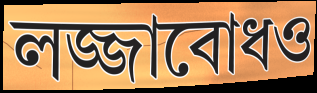
লজ্জাবোধও